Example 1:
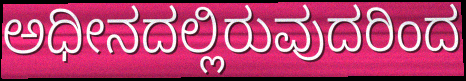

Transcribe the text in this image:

ಅಧೀನದಲ್ಲಿರುವುದರಿಂದ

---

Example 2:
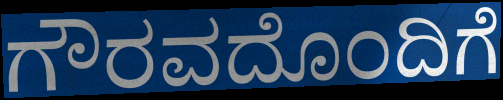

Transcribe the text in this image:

ಗೌರವದೊಂದಿಗೆ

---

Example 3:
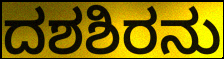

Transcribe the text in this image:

ದಶಶಿರನು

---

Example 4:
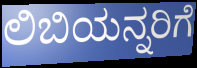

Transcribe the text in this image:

ಲಿಬಿಯನ್ನರಿಗೆ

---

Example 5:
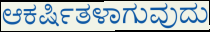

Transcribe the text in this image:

ಆಕರ್ಷಿತಳಾಗುವುದು